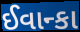
ઈવાન્કા